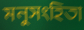
মনুসংহিতা